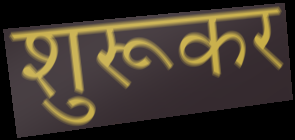
शुरूकर